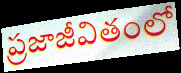
ప్రజాజీవితంలో